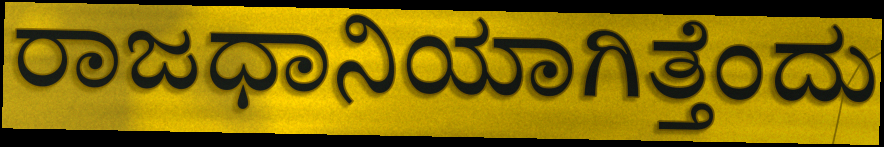
ರಾಜಧಾನಿಯಾಗಿತ್ತೆಂದು